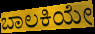
ಬಾಲಕಿಯೇ